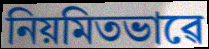
নিয়মিতভাৱে